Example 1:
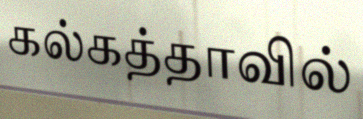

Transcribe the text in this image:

கல்கத்தாவில்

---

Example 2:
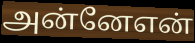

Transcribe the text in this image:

அன்னேஎன்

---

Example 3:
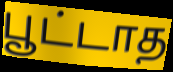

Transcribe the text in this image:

பூட்டாத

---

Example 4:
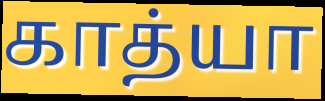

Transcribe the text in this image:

காத்யா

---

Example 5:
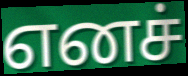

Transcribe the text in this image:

எனச்